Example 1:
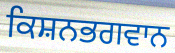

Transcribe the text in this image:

ਕਿਸ਼ਨਭਗਵਾਨ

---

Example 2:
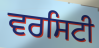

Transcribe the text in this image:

ਵਰਸਿਟੀ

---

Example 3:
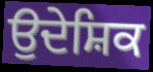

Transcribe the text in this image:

ਉਦੇਸ਼ਿਕ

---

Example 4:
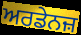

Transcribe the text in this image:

ਅਰਡੇਨਜ਼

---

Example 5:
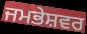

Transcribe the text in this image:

ਜਮਭੇਸ਼ਵਰ